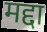
मद्दा